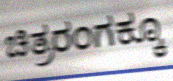
ಚಿತ್ರರಂಗಕ್ಕೂ